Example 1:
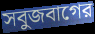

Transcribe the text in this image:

সবুজবাগের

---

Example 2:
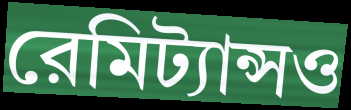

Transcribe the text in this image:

রেমিট্যান্সও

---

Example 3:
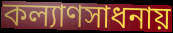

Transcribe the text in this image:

কল্যাণসাধনায়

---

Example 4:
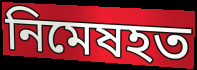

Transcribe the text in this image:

নিমেষহত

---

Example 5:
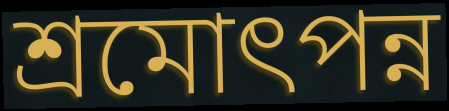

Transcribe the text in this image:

শ্রমোৎপন্ন